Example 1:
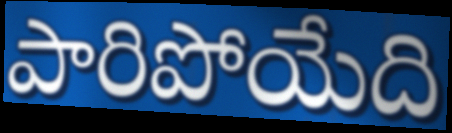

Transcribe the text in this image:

పారిపోయేది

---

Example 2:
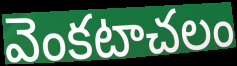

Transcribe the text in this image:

వెంకటాచలం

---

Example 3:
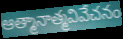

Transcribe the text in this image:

ఆత్మానాత్మవివేచనం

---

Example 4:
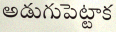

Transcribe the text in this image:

అడుగుపెట్టాక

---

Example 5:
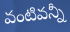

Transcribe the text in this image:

వంటివన్నీ